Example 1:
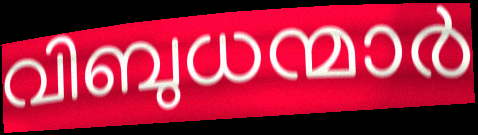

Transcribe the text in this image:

വിബുധന്മാർ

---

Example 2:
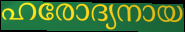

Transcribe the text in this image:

ഹരോദ്യനായ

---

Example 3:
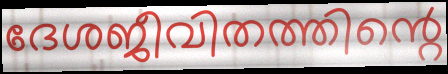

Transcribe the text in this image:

ദേശജീവിതത്തിന്റെ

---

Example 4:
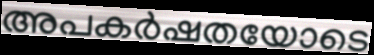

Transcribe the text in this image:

അപകർഷതയോടെ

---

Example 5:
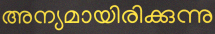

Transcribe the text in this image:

അന്യമായിരിക്കുന്നു